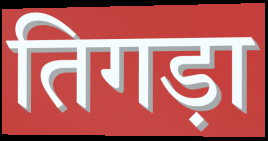
तिगड़ा